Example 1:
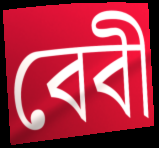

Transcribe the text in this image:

বেবী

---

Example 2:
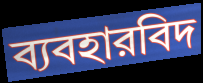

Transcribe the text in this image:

ব্যবহারবিদ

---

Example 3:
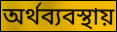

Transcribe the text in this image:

অর্থব্যবস্থায়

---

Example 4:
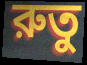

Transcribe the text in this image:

রুতু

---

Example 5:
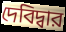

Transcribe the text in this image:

দেবিদ্বার